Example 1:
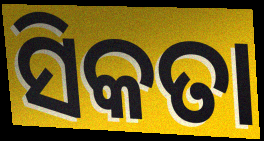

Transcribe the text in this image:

ସିକତା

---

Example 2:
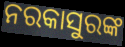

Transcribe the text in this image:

ନରକାସୁରଙ୍କ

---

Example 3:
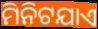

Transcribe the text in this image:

ମିନିଟଯାଏ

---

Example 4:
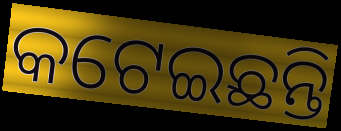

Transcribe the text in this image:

କଟେଇଛନ୍ତି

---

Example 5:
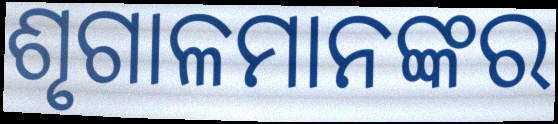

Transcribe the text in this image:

ଶୃଗାଳମାନଙ୍କର